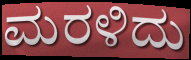
ಮರಳಿದು